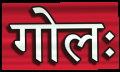
गोलः